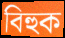
বিহুক